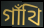
গাঁথি